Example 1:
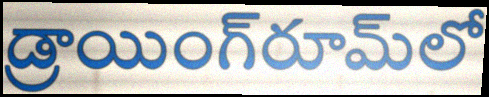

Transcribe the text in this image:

డ్రాయింగ్‌రూమ్‌లో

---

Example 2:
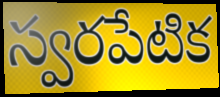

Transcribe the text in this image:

స్వరపేటిక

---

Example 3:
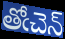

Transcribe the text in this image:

తోఁచెన్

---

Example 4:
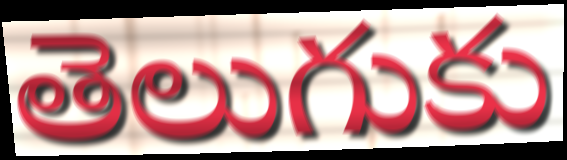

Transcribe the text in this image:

తెలుగుకు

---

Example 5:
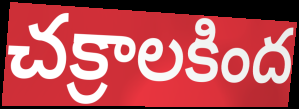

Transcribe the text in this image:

చక్రాలకింద